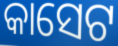
କାସେଟ